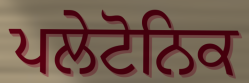
ਪਲੇਟੋਨਿਕ